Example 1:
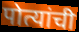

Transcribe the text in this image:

पोत्यांची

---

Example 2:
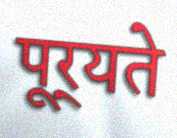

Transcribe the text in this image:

पूर्यते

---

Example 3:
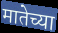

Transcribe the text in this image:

मातेच्या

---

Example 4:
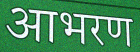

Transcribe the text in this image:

आभरण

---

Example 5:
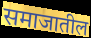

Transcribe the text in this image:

समाजातील